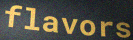
flavors